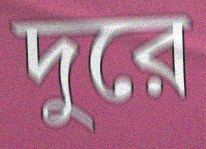
দুরে